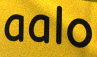
aalo